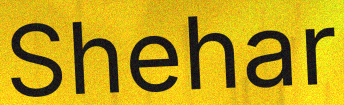
Shehar